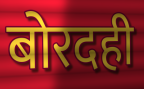
बोरदही